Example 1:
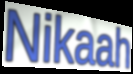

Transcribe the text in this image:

Nikaah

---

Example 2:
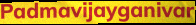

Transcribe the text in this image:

Padmavijayganivar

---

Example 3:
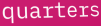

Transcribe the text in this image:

quarters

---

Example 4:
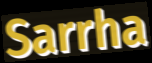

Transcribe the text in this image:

Sarrha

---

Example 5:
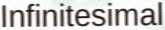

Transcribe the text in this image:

Infinitesimal